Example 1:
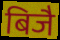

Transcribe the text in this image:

बिजै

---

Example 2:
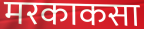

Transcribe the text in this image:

मरकाकसा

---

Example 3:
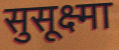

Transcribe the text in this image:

सुसूक्ष्मा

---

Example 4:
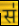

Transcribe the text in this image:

स॑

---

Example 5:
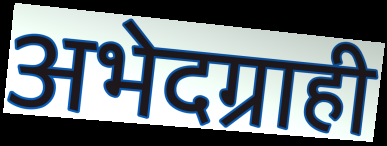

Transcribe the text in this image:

अभेदग्राही